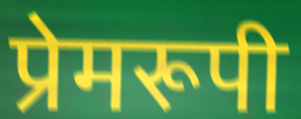
प्रेमरूपी